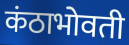
कंठाभोवती